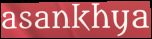
asankhya